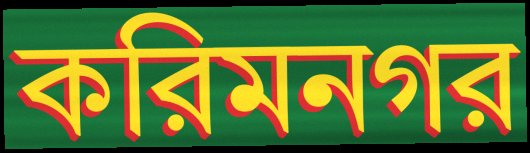
করিমনগর